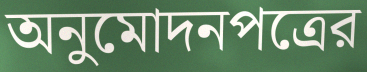
অনুমোদনপত্রের